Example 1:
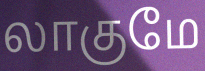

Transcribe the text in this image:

லாகுமே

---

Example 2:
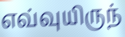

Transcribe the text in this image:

எவ்வுயிருந்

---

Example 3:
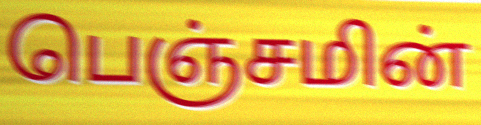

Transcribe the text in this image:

பெஞ்சமின்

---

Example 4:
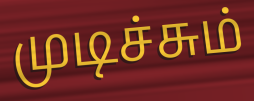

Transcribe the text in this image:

முடிச்சும்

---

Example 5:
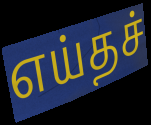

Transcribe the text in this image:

எய்தச்